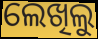
ଲେଖିଲୁ